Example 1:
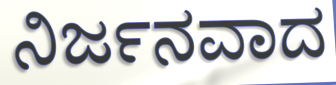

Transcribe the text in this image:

ನಿರ್ಜನವಾದ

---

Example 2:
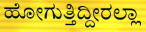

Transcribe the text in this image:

ಹೋಗುತ್ತಿದ್ದೀರಲ್ಲಾ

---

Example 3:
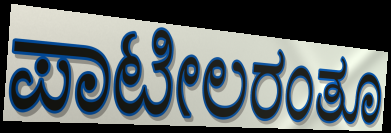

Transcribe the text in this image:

ಪಾಟೀಲರಂತೂ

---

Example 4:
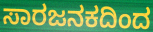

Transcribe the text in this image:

ಸಾರಜನಕದಿಂದ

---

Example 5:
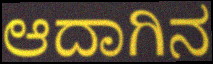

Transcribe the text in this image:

ಆದಾಗಿನ